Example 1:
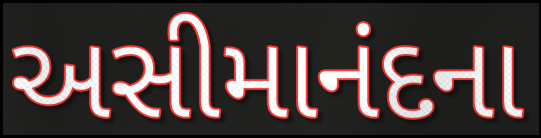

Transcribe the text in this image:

અસીમાનંદના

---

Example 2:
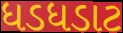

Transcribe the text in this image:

ધડધડાટ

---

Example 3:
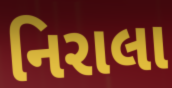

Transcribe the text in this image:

નિરાલા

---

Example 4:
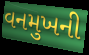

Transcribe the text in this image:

વનમુખની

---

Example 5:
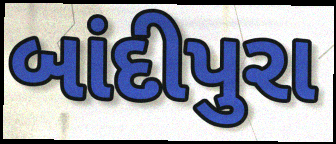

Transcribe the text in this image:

બાંદીપુરા